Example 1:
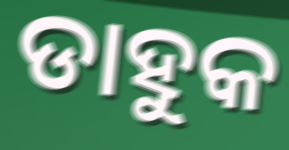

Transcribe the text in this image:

ଡାହୁକ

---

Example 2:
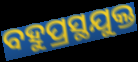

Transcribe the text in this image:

ବହୁପ୍ରସ୍ଥଯୁକ୍ତ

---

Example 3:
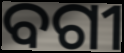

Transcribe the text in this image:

ବଗୀ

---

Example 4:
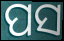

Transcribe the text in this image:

ପସ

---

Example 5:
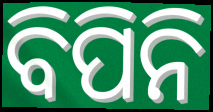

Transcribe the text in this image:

ବିପିନି